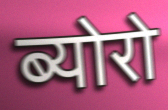
ब्योरो